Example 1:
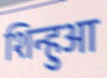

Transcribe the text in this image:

शिन्हुआ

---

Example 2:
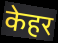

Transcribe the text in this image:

केहर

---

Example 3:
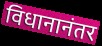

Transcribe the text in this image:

विधानानंतर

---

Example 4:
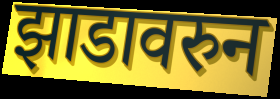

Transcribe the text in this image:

झाडावरुन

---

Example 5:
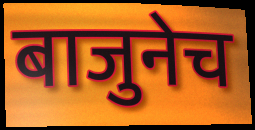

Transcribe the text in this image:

बाजुनेच